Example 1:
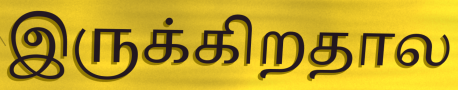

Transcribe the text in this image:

இருக்கிறதால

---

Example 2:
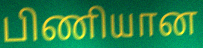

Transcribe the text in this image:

பிணியான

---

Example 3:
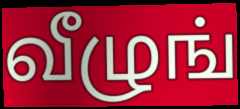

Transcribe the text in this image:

வீழுங்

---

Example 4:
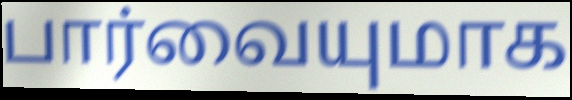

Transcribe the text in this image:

பார்வையுமாக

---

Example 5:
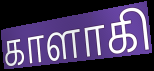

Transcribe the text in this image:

காளாகி